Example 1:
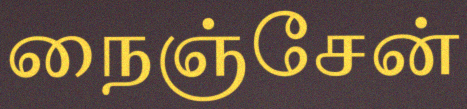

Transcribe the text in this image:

நைஞ்சேன்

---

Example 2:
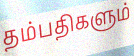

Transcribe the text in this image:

தம்பதிகளும்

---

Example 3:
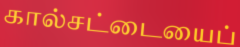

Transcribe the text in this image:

கால்சட்டையைப்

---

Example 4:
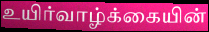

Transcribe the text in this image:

உயிர்வாழ்க்கையின்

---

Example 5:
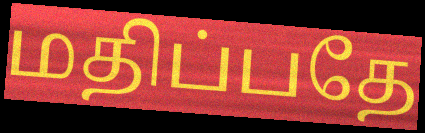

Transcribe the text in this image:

மதிப்பதே